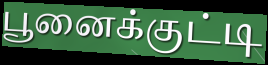
பூனைக்குட்டி